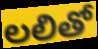
లలితో